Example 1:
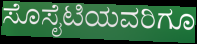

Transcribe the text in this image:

ಸೊಸೈಟಿಯವರಿಗೂ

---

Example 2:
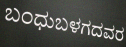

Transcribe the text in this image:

ಬಂಧುಬಳಗದವರ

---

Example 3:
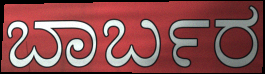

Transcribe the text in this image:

ಬಾರ್ಬರ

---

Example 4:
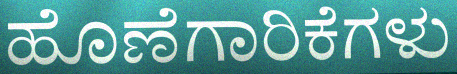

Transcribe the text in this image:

ಹೊಣೆಗಾರಿಕೆಗಳು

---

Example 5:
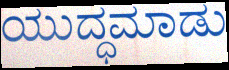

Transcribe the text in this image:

ಯುದ್ಧಮಾಡು